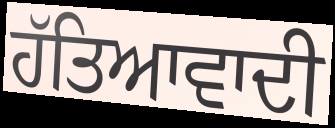
ਹੱਤਿਆਵਾਦੀ